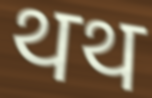
थथ